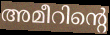
അമീറിന്റെ